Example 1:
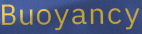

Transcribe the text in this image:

Buoyancy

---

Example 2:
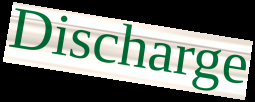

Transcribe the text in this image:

Discharge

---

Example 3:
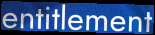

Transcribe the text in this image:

entitlement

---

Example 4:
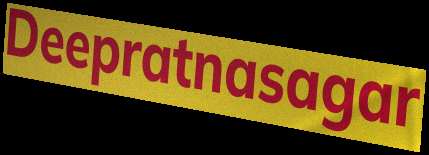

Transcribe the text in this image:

Deepratnasagar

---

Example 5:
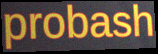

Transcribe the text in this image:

probash